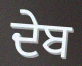
ਦੇਬ